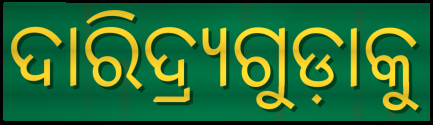
ଦାରିଦ୍ର୍ୟଗୁଡ଼ାକୁ